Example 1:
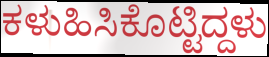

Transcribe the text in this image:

ಕಳುಹಿಸಿಕೊಟ್ಟಿದ್ದಳು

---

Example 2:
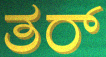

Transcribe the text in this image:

ತರ್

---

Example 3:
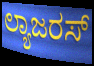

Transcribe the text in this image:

ಲ್ಯಾಜರಸ್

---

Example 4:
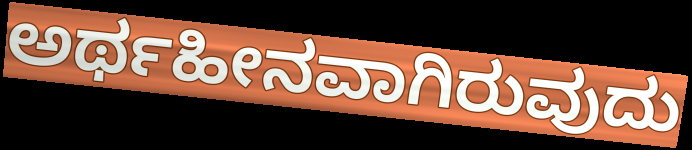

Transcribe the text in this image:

ಅರ್ಥಹೀನವಾಗಿರುವುದು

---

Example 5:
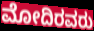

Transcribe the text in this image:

ಮೋದಿರವರು